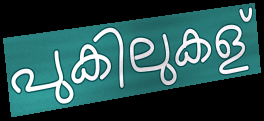
പുകിലുകള്